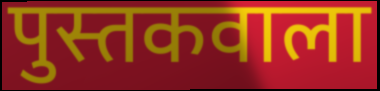
पुस्तकवाला